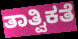
ತಾತ್ವಿಕತೆ